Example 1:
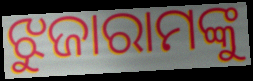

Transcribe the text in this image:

ଝୁଜାରାମଙ୍କୁ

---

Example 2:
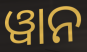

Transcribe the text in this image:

ୱାନ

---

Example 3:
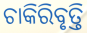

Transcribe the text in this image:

ଚାକିରିବୃତ୍ତି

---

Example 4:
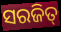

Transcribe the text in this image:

ସରଜିତ୍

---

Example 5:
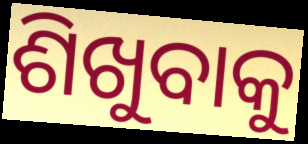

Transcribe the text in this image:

ଶିଖୁବାକୁ